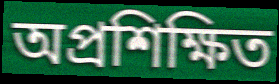
অপ্রশিক্ষিত